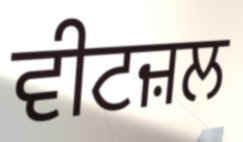
ਵੀਟਜ਼ਲ